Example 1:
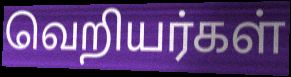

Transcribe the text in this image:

வெறியர்கள்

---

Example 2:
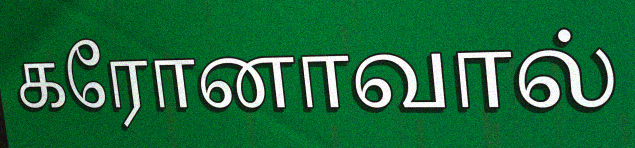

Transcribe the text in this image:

கரோனாவால்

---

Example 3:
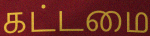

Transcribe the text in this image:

கட்டமை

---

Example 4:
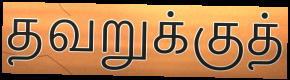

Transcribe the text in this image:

தவறுக்குத்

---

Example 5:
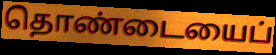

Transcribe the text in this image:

தொண்டையைப்